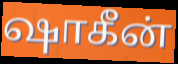
ஷாகீன்